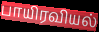
பாயிரவியல்